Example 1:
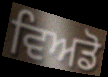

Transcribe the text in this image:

ਵਿਅਡੋ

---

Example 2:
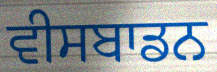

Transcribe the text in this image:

ਵੀਸਬਾਡਨ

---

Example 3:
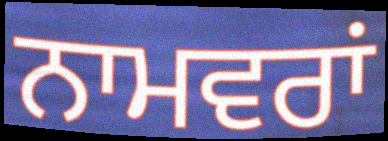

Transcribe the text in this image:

ਨਾਮਵਰਾਂ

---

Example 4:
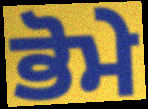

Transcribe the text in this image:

ਭੋਮੇ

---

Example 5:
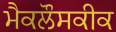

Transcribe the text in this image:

ਮੈਕਲੌਸਕੀਕ